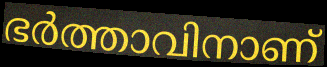
ഭർത്താവിനാണ്